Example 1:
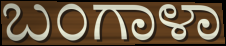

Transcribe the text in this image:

ಬಂಗಾಳಾ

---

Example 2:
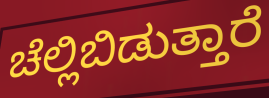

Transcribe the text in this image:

ಚೆಲ್ಲಿಬಿಡುತ್ತಾರೆ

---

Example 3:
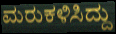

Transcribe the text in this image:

ಮರುಕಳಿಸಿದ್ದು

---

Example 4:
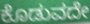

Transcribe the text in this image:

ಕೊಡುವದೇ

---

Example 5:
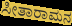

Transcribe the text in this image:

ಸೀತಾರಾಮನ